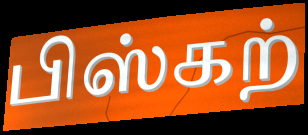
பிஸ்கற்